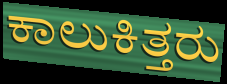
ಕಾಲುಕಿತ್ತರು